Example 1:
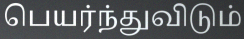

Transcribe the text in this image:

பெயர்ந்துவிடும்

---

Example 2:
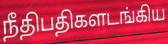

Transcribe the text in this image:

நீதிபதிகளடங்கிய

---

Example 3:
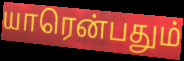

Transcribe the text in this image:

யாரென்பதும்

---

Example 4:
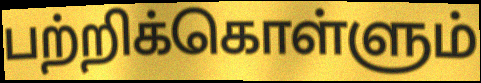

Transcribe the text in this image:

பற்றிக்கொள்ளும்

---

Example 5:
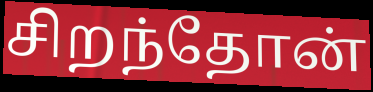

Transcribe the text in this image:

சிறந்தோன்